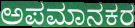
ಅಪಮಾನಕರ